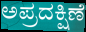
ಅಪ್ರದಕ್ಷಿಣೆ